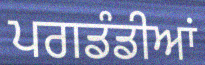
ਪਗਡੰਡੀਆਂ